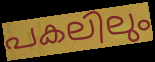
പകലിലും